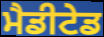
ਮੈਡੀਟੇਡ